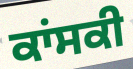
ਕਾਂਸਕੀ